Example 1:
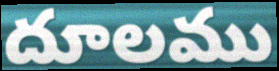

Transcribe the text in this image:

దూలము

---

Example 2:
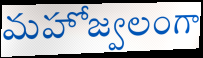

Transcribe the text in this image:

మహోజ్వలంగా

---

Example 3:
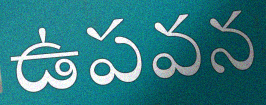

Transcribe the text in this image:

ఉపవన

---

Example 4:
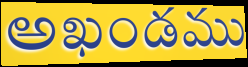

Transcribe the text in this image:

అఖండము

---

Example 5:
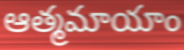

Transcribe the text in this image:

ఆత్మమాయాం